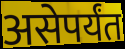
असेपर्यंत